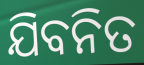
ଯିବନିତ